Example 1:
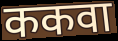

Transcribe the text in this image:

ककवा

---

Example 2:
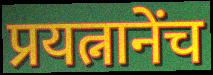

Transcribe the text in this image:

प्रयत्नानेंच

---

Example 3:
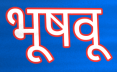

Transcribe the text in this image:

भूषवू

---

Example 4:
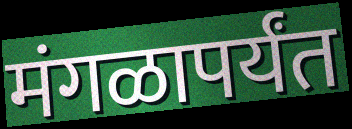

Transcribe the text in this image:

मंगळापर्यंत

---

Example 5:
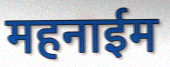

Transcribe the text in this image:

महनाईम